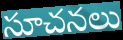
సూచనలు